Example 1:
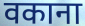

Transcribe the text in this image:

वकाना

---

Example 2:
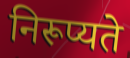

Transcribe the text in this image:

निरूप्यते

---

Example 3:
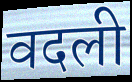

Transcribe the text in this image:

वदली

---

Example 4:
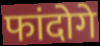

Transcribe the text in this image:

फांदोगे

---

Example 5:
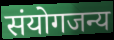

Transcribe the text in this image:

संयोगजन्य